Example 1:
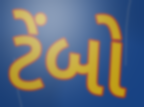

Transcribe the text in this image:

ટેંબો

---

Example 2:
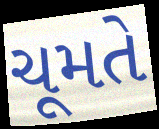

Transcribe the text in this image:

ચૂમતે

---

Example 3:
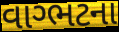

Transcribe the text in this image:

વાગ્ભટના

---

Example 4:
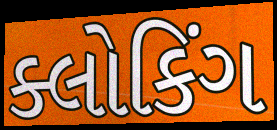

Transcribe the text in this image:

ક્લોકિંગ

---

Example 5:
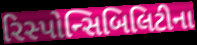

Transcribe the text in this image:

રિસ્પોન્સિબિલિટીના